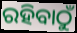
ରହିବାଠୁଁ